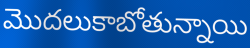
మొదలుకాబోతున్నాయి